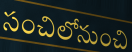
సంచిలోనుంచి